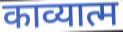
काव्यात्म